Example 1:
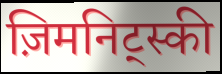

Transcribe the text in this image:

ज़िमनिट्स्की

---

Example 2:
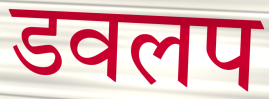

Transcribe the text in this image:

डवलप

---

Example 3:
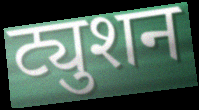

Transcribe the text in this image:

ट्युशन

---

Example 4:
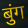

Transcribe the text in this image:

बुंग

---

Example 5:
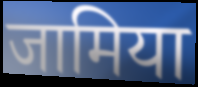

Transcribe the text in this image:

जामिया